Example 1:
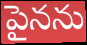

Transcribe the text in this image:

పైనను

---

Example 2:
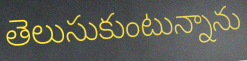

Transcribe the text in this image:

తెలుసుకుంటున్నాను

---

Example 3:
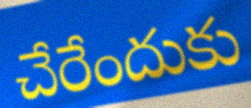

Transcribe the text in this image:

చేరేందుకు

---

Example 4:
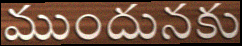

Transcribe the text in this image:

ముందునకు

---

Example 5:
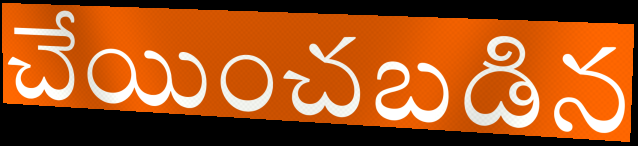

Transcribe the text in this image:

చేయించబడిన